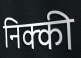
निक्‍की